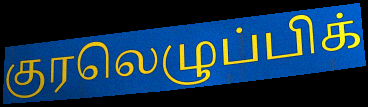
குரலெழுப்பிக்